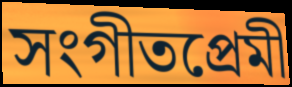
সংগীতপ্রেমী